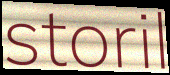
storil